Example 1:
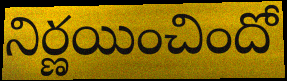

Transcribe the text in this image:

నిర్ణయించిందో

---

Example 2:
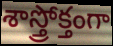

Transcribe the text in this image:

శాస్త్రోక్తంగా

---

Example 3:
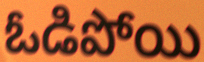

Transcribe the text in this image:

ఓడిపోయి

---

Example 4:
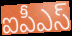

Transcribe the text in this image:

ఐపీఎస్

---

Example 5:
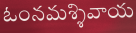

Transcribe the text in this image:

ఓంనమశ్శివాయ